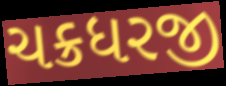
ચક્રધરજી